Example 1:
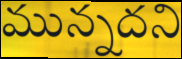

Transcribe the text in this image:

మున్నదని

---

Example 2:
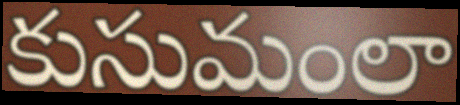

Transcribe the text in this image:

కుసుమంలా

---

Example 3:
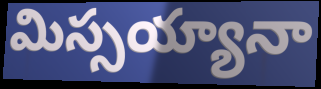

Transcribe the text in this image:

మిస్సయ్యానా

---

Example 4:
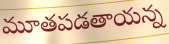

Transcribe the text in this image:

మూతపడతాయన్న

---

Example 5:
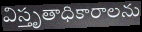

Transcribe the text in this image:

విస్తృతాధికారాలను